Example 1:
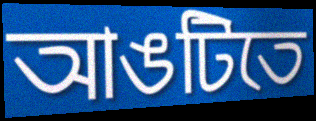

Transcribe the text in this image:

আঙটিতে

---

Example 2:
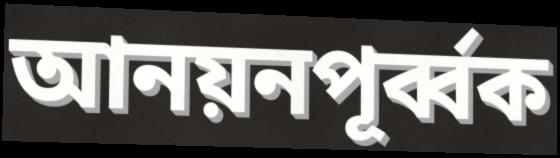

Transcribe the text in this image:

আনয়নপূর্ব্বক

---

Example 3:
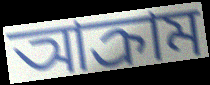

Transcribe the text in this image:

আক্রাম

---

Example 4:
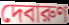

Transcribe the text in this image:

দেবারুণ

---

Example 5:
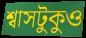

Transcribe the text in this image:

শ্বাসটুকুও